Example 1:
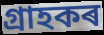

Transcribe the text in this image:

গ্ৰাহকৰ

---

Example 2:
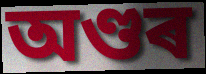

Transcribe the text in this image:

অণ্ডৰ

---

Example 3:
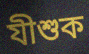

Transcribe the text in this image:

যীশুক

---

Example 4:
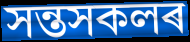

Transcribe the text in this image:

সন্তসকলৰ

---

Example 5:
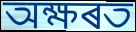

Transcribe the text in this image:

অক্ষৰত